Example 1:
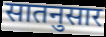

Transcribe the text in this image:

सातनुसार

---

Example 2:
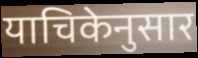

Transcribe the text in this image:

याचिकेनुसार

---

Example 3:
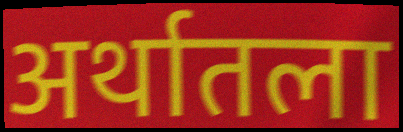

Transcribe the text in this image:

अर्थातला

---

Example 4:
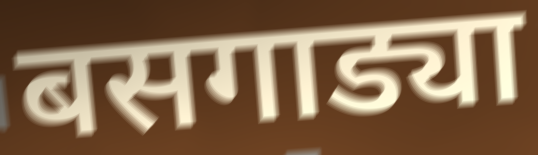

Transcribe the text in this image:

बसगाड्या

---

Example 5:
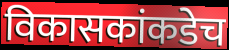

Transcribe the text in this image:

विकासकांकडेच